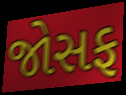
જોસફ